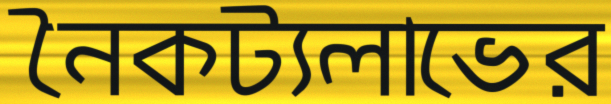
নৈকট্যলাভের